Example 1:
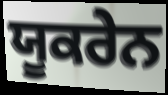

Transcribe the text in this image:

ਯੂਕਰੇਨ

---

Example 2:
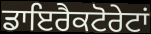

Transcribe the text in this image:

ਡਾਇਰੈਕਟੋਰੇਟਾਂ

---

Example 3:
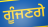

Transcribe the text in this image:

ਗੂੰਜਣਗੇ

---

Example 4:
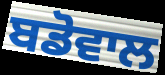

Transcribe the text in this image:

ਬਡੋਵਾਲ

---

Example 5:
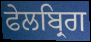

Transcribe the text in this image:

ਫੇਲਬ੍ਰਿਗ